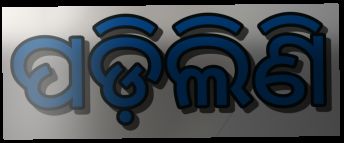
ପଡ଼ିଲିଣି